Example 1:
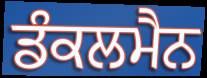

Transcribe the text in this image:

ਡੰਕਲਮੈਨ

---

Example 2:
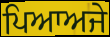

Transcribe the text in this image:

ਪਿਆਅਜੇ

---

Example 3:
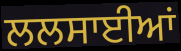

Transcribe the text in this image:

ਲਲਸਾਈਆਂ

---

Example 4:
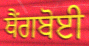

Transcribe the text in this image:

ਥੈਂਗਬੋਈ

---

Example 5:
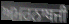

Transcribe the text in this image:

ਅਮਰਨਾਥਜੀ